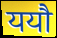
ययौ